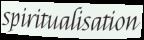
spiritualisation